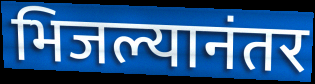
भिजल्यानंतर